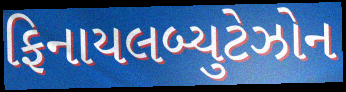
ફિનાયલબ્યુટેઝોન